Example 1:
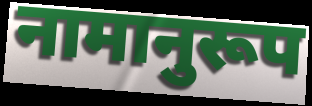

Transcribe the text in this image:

नामानुरूप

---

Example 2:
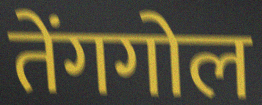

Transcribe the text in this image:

तेंगगोल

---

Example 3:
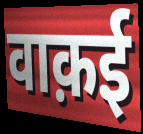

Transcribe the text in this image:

वाक़ई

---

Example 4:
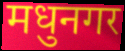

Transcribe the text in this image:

मधुनगर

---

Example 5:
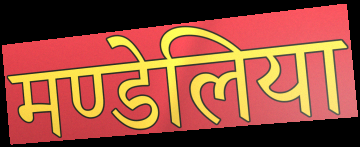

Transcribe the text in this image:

मण्डेलिया